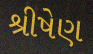
શ્રીષેણ